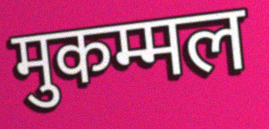
मुकम्मल